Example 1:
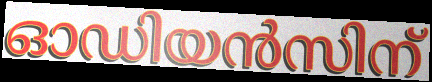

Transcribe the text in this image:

ഓഡിയൻസിന്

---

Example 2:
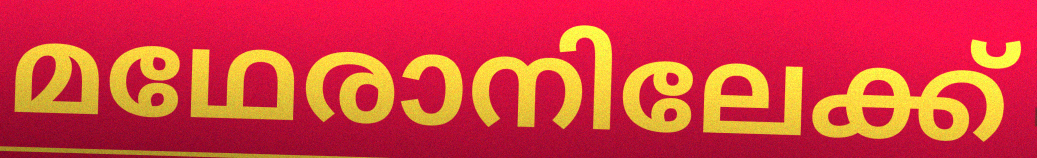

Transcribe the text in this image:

മഥേരാനിലേക്ക്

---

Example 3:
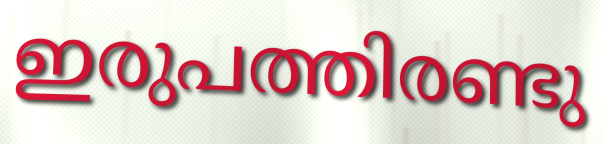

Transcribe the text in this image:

ഇരുപത്തിരണ്ടു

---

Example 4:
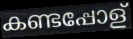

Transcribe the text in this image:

കണ്ടപ്പോള്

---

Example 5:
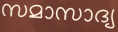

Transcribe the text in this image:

സമാസാദ്യ